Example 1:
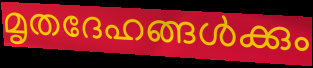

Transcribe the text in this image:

മൃതദേഹങ്ങൾക്കും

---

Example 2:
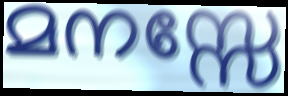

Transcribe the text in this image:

മനസ്സേ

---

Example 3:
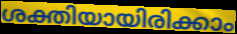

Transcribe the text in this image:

ശക്തിയായിരിക്കാം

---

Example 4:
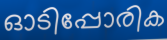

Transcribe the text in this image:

ഓടിപ്പോരിക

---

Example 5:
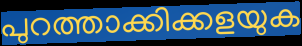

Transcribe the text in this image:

പുറത്താക്കിക്കളയുക